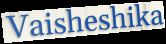
Vaisheshika